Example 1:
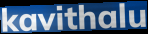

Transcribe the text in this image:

kavithalu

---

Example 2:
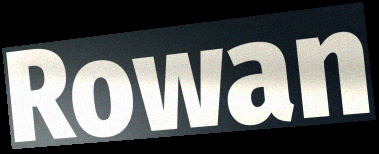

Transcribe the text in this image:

Rowan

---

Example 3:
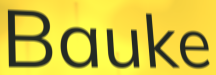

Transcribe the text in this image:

Bauke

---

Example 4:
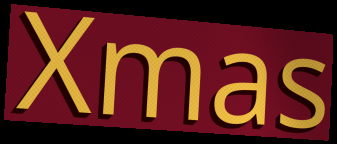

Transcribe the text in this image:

Xmas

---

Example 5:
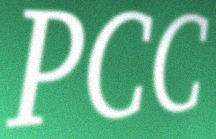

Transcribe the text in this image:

PCC